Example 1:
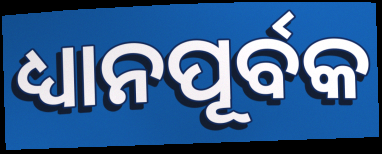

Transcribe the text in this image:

ଧ୍ୟାନପୂର୍ବକ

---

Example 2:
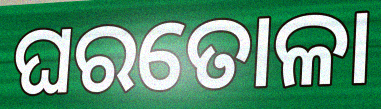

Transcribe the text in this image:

ଘରତୋଳା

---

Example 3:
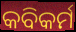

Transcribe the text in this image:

କବିକର୍ମ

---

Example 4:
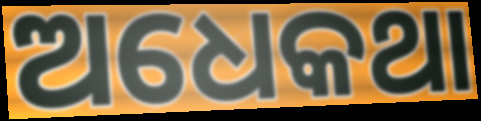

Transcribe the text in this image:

ଅଧେକଥା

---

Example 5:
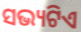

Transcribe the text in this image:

ସଭ୍ୟଟିଏ